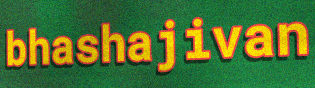
bhashajivan